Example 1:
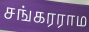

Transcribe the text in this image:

சங்கரராம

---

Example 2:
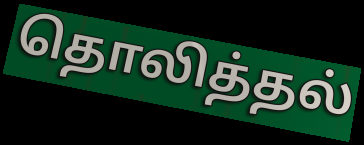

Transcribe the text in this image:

தொலித்தல்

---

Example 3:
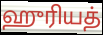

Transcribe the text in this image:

ஹுரியத்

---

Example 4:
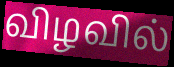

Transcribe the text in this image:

விழவில்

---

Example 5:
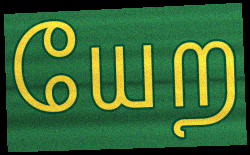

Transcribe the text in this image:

யேற